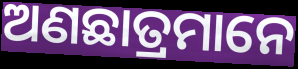
ଅଣଛାତ୍ରମାନେ